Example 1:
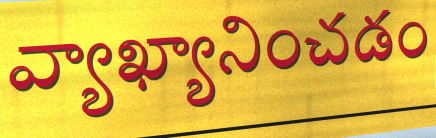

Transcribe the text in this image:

వ్యాఖ్యానించడం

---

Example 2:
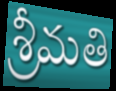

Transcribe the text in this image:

శ్రీమతి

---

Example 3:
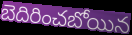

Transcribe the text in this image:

బెదిరించబోయిన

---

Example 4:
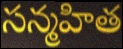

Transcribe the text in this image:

సన్మహిత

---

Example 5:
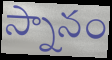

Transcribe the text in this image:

స్నానం